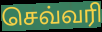
செவ்வரி